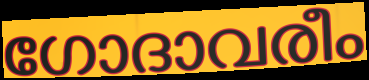
ഗോദാവരീം